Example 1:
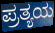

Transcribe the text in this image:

ಪ್ರತ್ಯಯ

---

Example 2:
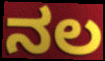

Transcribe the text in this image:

ನಲ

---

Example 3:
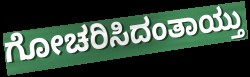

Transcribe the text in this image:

ಗೋಚರಿಸಿದಂತಾಯ್ತು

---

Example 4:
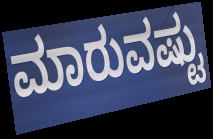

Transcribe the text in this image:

ಮಾರುವಷ್ಟು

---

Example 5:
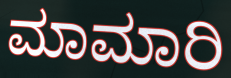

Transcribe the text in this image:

ಮಾಮಾರಿ